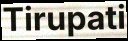
Tirupati